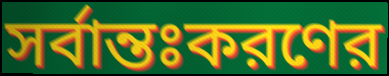
সর্বান্তঃকরণের